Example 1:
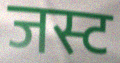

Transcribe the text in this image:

जस्ट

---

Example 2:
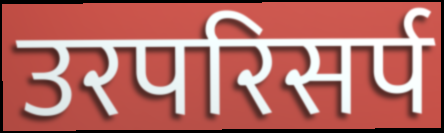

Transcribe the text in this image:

उरपरिसर्प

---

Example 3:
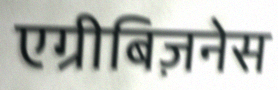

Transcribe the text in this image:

एग्रीबिज़नेस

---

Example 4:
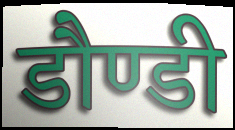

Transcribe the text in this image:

डौण्डी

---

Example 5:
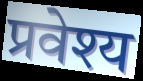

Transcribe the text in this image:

प्रवेश्य